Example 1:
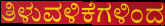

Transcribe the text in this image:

ತಿಳುವಳಿಕೆಗಳಿಂದ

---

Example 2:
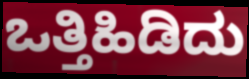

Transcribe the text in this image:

ಒತ್ತಿಹಿಡಿದು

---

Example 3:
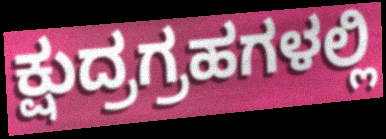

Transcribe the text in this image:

ಕ್ಷುದ್ರಗ್ರಹಗಳಲ್ಲಿ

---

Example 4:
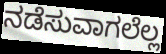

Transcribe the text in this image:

ನಡೆಸುವಾಗಲೆಲ್ಲ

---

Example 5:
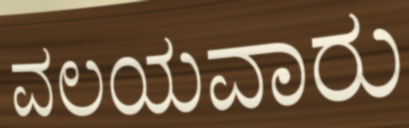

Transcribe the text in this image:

ವಲಯವಾರು